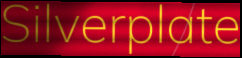
Silverplate